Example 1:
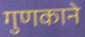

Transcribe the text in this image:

गुणकाने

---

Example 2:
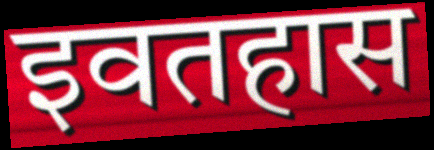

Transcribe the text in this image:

इवतहास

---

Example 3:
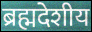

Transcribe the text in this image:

ब्रह्मदेशीय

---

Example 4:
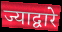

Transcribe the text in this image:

ज्याद्वारे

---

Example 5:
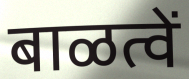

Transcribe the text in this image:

बाळत्वें